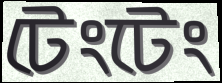
টেংটেং